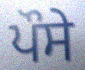
ਪੌਸੇ